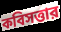
কবিসত্তার